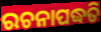
ରଚନାପଦ୍ଧତି